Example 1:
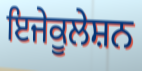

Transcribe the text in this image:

ਇਜੇਕੂਲੇਸ਼ਨ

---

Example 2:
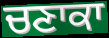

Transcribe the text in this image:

ਚਣਾਕਾ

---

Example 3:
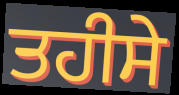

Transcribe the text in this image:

ਤਹੀਸੇ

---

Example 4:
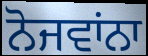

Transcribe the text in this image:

ਨੋਜਵਾਂਨਾ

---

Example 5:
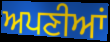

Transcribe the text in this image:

ਅਪਣੀਆਂ